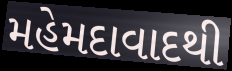
મહેમદાવાદથી